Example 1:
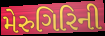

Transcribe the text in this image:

મેરુગિરિની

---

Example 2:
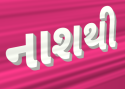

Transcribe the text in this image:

નાશથી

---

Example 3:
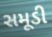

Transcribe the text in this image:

સમૂડી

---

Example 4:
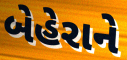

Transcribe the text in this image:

બેહેરાને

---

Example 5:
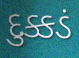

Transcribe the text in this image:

દુક્કડં